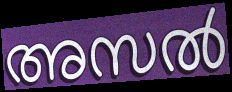
അസൽ